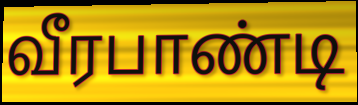
வீரபாண்டி